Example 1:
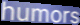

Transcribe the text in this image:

humors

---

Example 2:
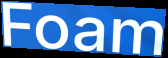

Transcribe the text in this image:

Foam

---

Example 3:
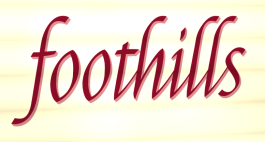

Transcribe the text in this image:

foothills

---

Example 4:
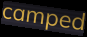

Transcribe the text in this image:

camped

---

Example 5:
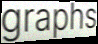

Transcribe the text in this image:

graphs